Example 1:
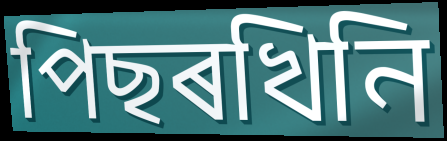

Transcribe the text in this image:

পিছৰখিনি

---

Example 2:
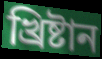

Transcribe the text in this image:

খ্ৰিষ্টান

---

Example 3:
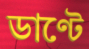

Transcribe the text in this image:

ডাণ্টে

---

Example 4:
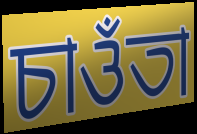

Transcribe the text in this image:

চাওঁতা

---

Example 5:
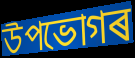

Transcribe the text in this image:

উপভোগৰ